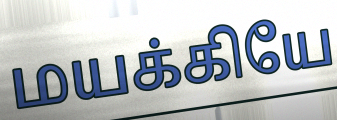
மயக்கியே